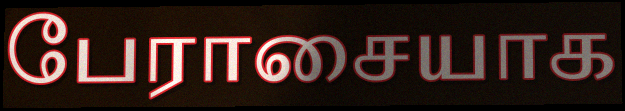
பேராசையாக